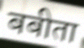
बबीता